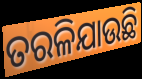
ତରଳିଯାଉଛି